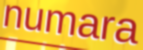
numara